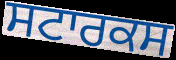
ਸਟਾਰਕਸ